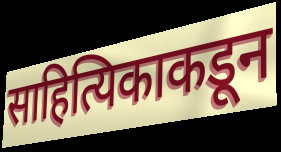
साहित्यिकाकडून